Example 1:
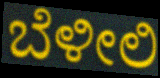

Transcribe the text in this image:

ಬೆಳೀಲಿ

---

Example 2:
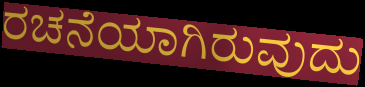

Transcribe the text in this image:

ರಚನೆಯಾಗಿರುವುದು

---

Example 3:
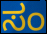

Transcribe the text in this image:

ಸಂ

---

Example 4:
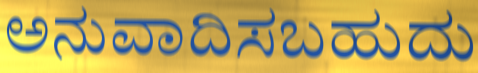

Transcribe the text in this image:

ಅನುವಾದಿಸಬಹುದು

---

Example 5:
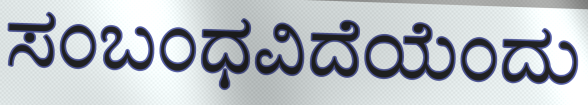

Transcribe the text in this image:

ಸಂಬಂಧವಿದೆಯೆಂದು